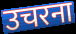
उचरना